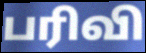
பரிவி